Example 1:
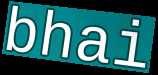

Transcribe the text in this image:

bhai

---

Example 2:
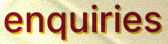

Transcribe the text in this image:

enquiries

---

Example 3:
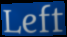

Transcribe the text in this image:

Left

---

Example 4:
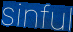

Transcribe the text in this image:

sinful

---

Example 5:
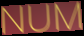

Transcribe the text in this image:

NUM